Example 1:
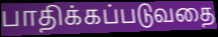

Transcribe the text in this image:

பாதிக்கப்படுவதை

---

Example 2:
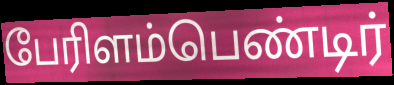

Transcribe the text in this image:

பேரிளம்பெண்டிர்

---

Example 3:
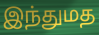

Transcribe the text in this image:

இந்துமத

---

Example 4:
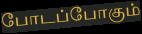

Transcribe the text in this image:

போடப்போகும்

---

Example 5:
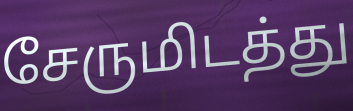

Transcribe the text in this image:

சேருமிடத்து